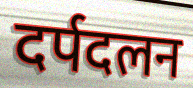
दर्पदलन